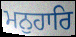
ਮਨੁਹਾਰਿ